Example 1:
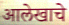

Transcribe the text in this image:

आलेखाचे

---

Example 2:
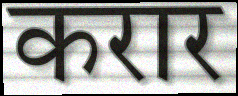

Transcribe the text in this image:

करार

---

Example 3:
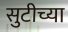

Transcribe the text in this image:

सुटीच्या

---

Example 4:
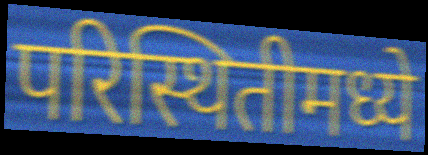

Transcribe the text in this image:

परिस्थितीमध्ये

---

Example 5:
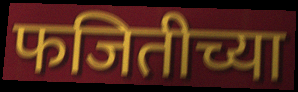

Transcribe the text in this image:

फजितीच्या